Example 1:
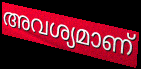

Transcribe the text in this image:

അവശ്യമാണ്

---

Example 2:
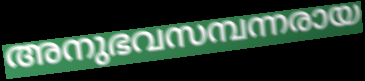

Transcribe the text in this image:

അനുഭവസമ്പന്നരായ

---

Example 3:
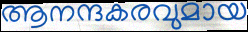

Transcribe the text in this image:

ആനന്ദകരവുമായ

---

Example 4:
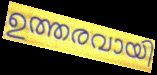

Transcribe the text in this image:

ഉത്തരവായി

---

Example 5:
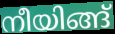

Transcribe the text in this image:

നീയിങ്ങ്